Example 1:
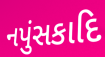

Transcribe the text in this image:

નપુંસકાદિ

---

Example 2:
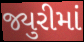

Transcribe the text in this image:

જ્યુરીમાં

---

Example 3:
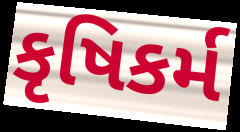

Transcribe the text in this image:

કૃષિકર્મ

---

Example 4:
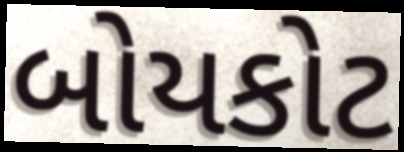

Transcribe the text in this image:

બોયકોટ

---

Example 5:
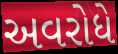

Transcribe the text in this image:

અવરોધે